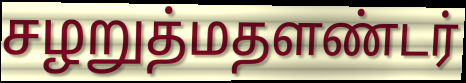
சழறுத்மதளண்டர்